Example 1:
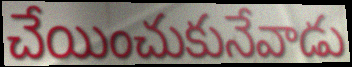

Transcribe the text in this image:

చేయించుకునేవాడు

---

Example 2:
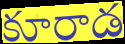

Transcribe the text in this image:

కూరాడ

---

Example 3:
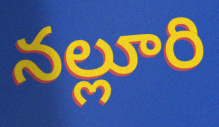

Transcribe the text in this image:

నల్లూరి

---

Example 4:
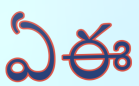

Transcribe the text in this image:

ఏఈ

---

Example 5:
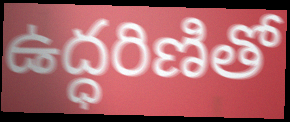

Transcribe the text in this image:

ఉద్ధరిణితో